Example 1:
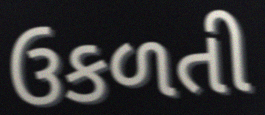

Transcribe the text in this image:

ઉકળતી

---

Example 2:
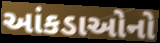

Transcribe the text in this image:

આંકડાઓનો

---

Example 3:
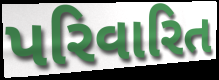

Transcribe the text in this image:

પરિવારિત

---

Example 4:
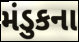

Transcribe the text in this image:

મંડુકના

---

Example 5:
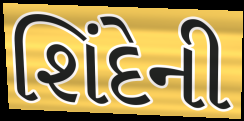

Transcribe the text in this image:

શિંદેની